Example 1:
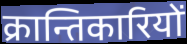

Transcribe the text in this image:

क्रान्तिकारियों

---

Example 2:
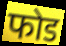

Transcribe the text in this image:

फोड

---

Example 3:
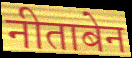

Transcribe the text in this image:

नीताबेन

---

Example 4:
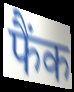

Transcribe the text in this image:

फैंक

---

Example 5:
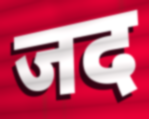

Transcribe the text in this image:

जद